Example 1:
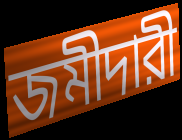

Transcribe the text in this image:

জমীদারী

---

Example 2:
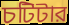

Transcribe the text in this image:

চটিটার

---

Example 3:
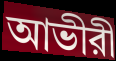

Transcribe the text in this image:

আভীরী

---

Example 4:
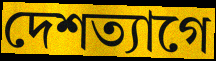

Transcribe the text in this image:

দেশত্যাগে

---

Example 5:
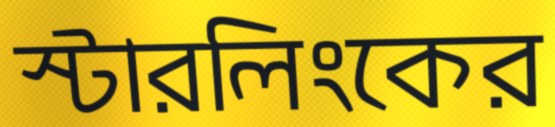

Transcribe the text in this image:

স্টারলিংকের